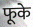
फूके